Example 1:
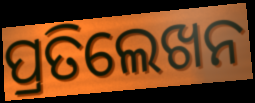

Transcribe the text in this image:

ପ୍ରତିଲେଖନ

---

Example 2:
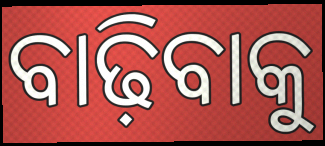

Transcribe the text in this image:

ବାଢ଼ିବାକୁ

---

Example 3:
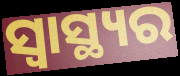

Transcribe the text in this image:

ସ୍ୱାସ୍ଥ୍ୟର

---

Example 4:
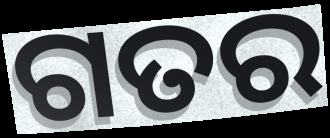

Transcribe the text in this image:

ଗତର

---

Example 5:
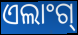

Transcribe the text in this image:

ଏଲାଂଗ୍